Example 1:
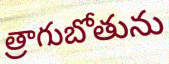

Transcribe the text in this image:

త్రాగుబోతును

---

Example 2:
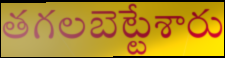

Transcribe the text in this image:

తగలబెట్టేశారు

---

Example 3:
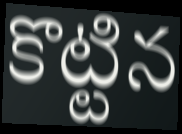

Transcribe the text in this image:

కొట్టిన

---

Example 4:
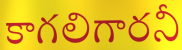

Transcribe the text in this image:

కాగలిగారనీ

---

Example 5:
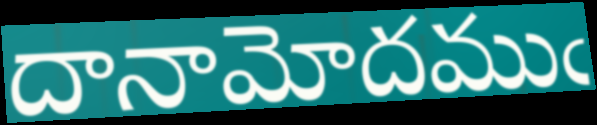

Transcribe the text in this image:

దానామోదముఁ